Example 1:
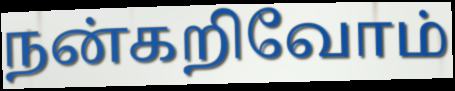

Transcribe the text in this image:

நன்கறிவோம்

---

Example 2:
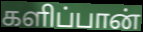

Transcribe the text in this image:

களிப்பான்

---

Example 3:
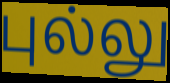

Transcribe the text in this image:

புல்லு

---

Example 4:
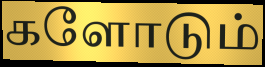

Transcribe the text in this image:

களோடும்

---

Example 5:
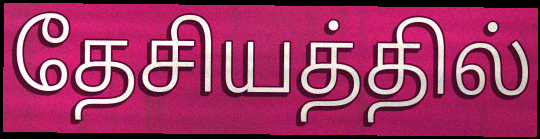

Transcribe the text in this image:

தேசியத்தில்